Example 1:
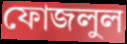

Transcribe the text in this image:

ফোজলুল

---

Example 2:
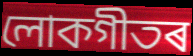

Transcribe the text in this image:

লোকগীতৰ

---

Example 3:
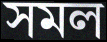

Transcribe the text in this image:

সমল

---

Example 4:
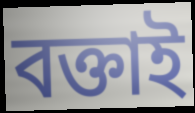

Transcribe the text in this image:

বক্তাই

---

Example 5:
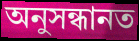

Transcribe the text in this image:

অনুসন্ধানত